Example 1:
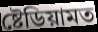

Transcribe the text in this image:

ষ্টেডিয়ামত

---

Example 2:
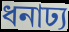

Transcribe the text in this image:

ধনাঢ্য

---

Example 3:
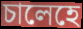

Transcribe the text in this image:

চালেহে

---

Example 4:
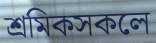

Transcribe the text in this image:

শ্ৰমিকসকলে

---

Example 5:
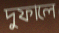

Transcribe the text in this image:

দুফালে